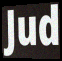
Jud